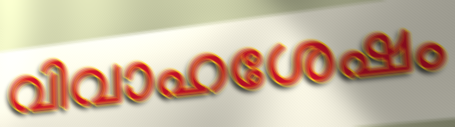
വിവാഹശേഷം